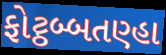
ફોટ્ઠબ્બતણ્હા